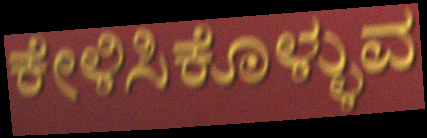
ಕೇಳಿಸಿಕೊಳ್ಳುವ